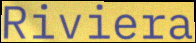
Riviera